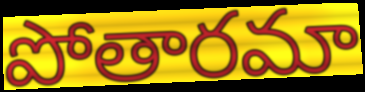
పోతారమా